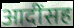
आदींसह